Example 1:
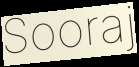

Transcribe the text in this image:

Sooraj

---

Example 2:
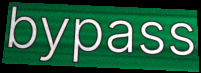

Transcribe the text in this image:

bypass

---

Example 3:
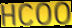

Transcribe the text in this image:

HCOO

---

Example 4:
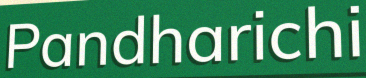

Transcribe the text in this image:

Pandharichi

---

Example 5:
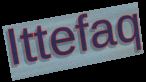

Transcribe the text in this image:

Ittefaq